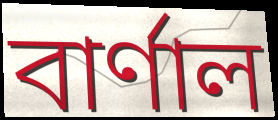
বাৰ্ণাল